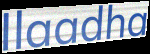
Ilaadha